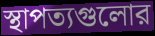
স্থাপত্যগুলোর